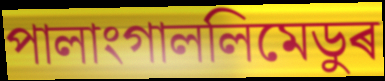
পালাংগাললিমেডুৰ